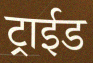
ट्राईड